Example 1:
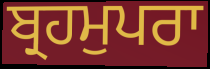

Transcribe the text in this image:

ਬ੍ਰਹਮੁਪਰਾ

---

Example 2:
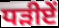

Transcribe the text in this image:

ਧੜੀਏਂ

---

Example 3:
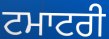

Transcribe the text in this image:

ਟਮਾਟਰੀ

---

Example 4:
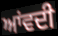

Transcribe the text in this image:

ਆਂਵਦੀ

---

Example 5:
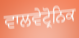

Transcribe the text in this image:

ਵਾਲਵੇਟ੍ਰੋਨਿਕ